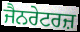
ਜੈਨਰੇਟਰਜ਼